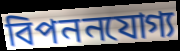
বিপননযোগ্য